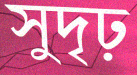
সুদৃঢ়